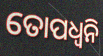
ତୋପଧ୍ୱନି